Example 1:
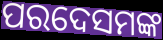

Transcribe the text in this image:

ପରଦେସମଙ୍କ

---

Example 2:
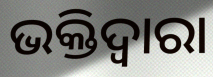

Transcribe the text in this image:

ଭକ୍ତିଦ୍ଵାରା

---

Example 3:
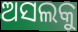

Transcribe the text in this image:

ଅସଲକୁ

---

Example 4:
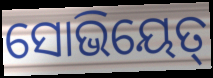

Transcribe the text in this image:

ସୋଭିୟେତ୍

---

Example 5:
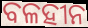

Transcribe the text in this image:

ବଳହୀନ